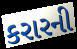
કરારની